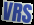
VRS